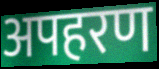
अपहरण